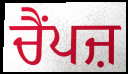
ਚੈਂਪਜ਼